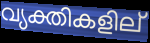
വ്യക്തികളില്